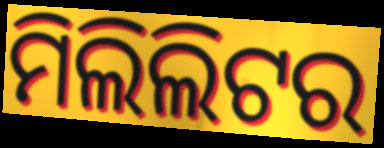
ମିଲିଲିଟର